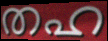
തഹ